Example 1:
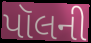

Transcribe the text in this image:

પૉલની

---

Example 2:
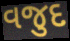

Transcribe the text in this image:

વજુદ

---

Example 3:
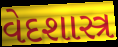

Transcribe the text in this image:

વેદશાસ્ત્ર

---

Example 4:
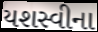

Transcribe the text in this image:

યશસ્વીના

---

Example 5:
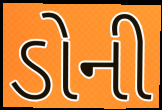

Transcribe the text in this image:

ડોની